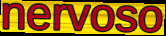
nervoso